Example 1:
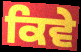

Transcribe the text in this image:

ਕਿਵੇ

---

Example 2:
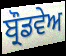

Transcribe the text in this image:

ਬ੍ਰੌਡਵੇਅ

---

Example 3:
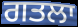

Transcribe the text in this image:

ਗਤਲਾ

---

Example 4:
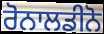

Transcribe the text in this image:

ਰੋਨਾਲਡੀਨੋ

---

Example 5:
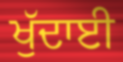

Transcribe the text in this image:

ਖੁੱਦਾਈ